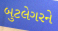
બુટલેગરને